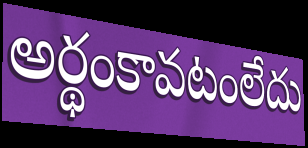
అర్థంకావటంలేదు